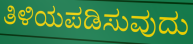
ತಿಳಿಯಪಡಿಸುವುದು